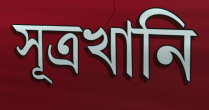
সূত্রখানি